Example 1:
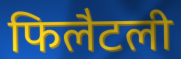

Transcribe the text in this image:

फिलैटली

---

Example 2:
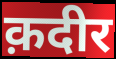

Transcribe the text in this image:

क़दीर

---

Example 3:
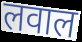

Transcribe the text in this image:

लवाल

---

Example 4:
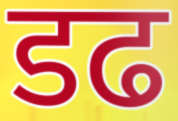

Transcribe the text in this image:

डढ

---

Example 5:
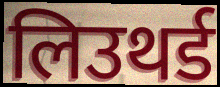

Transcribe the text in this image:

लिउथर्ड